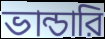
ভান্ডারি